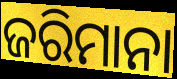
ଜରିମାନା